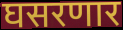
घसरणार